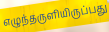
எழுந்தருளியிருப்பது